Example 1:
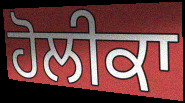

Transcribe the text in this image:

ਹੋਲੀਕਾ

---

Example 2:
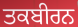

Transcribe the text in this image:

ਤਕਬੀਰਨ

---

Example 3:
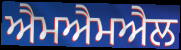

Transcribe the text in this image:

ਐਮਐਮਐਲ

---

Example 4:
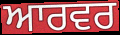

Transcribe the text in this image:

ਆਰਵਰ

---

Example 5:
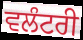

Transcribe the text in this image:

ਵਲੰਟਰੀ